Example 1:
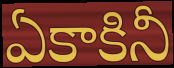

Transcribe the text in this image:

ఏకాకినీ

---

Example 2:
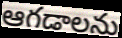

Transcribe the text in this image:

ఆగడాలను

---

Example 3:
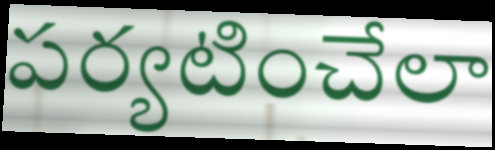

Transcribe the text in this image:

పర్యటించేలా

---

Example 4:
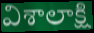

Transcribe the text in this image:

విశాలాక్షి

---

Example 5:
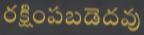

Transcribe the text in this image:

రక్షింపబడెదవు